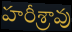
హరీశ్రావు